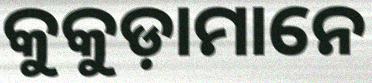
କୁକୁଡ଼ାମାନେ